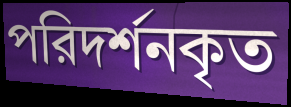
পরিদর্শনকৃত